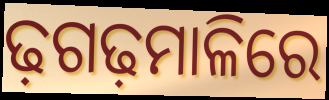
ଢ଼ଗଢ଼ମାଳିରେ